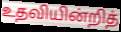
உதவியின்றித்